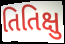
તિતિક્ષુ